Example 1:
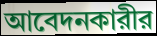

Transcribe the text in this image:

আবেদনকারীর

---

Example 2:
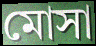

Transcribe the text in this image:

মোসা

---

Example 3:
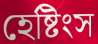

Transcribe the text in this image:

হেষ্টিংস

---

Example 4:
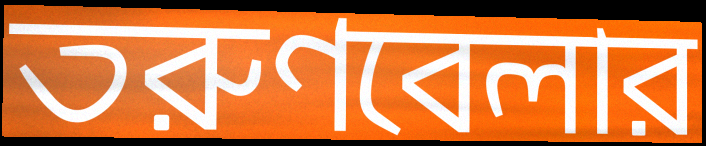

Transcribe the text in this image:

তরুণবেলার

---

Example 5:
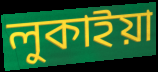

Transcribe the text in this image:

লুকাইয়া